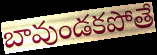
బావుండకపోతే